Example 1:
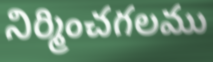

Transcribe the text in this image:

నిర్మించగలము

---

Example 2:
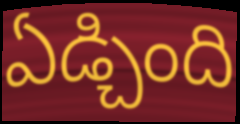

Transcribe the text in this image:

ఏడ్చింది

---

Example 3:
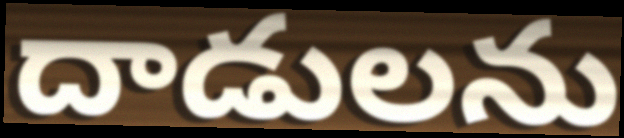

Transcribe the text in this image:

దాడులను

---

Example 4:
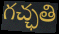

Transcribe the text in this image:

గచ్ఛతి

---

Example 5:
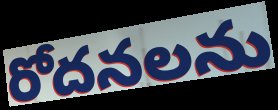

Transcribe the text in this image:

రోదనలను